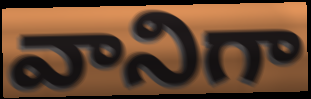
వానిగా